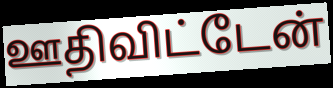
ஊதிவிட்டேன்